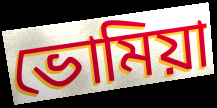
ভোমিয়া